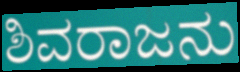
ಶಿವರಾಜನು